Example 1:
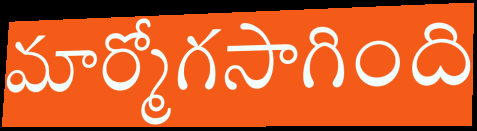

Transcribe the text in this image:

మార్మోగసాగింది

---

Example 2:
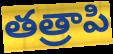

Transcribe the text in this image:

తత్రాపి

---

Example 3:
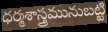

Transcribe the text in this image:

ధర్మశాస్త్రమునుబట్టి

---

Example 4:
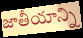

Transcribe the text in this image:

జాతీయాన్ని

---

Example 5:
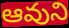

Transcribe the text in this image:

ఆవుని